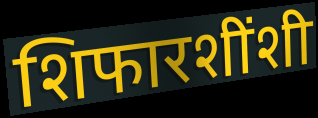
शिफारशींशी